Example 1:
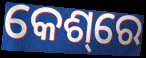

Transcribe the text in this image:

କେଶ୍‌ରେ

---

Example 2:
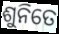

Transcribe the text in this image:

ଶୁନିତେ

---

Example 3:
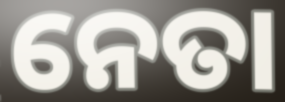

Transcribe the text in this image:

ନେତା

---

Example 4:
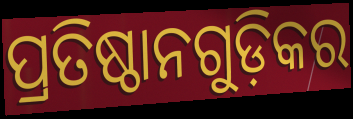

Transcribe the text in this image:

ପ୍ରତିଷ୍ଠାନଗୁଡ଼ିକର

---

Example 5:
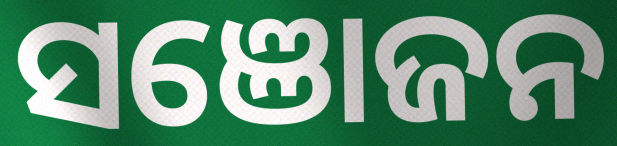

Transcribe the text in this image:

ସଞୋଜନ